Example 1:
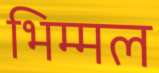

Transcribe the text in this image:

भिम्मल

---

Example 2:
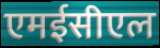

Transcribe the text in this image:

एमईसीएल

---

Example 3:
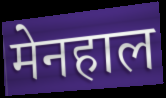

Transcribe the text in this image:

मेनहाल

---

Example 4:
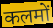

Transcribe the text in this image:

कलमों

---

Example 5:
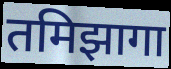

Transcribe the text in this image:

तमिझागा